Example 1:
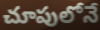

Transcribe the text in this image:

చూపులోనే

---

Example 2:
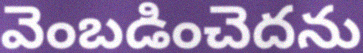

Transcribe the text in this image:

వెంబడించెదను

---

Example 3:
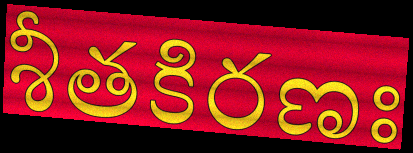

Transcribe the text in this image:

శీతకిరణః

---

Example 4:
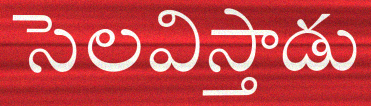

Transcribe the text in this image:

సెలవిస్తాడు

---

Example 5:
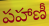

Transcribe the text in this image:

పహాణీ